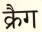
क्रैग